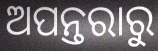
ଅପନ୍ତରାରୁ